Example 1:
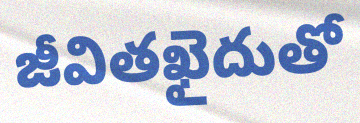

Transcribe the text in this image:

జీవితఖైదుతో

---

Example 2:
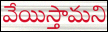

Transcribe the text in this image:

వేయిస్తామని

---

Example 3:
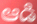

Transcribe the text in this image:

ఆడి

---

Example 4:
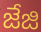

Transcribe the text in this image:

జేజి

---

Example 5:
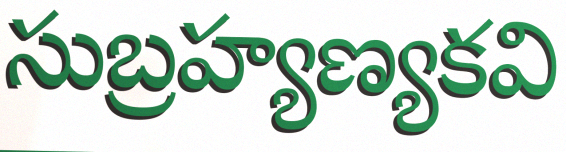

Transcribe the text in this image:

సుబ్రహ్యణ్యకవి